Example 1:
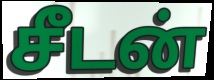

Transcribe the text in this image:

சீடன்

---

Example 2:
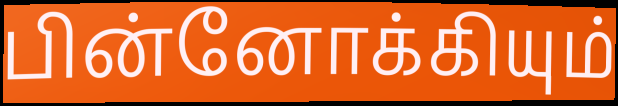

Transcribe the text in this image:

பின்னோக்கியும்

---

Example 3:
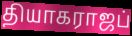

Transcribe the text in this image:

தியாகராஜப்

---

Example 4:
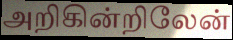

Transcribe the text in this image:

அறிகின்றிலேன்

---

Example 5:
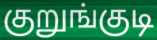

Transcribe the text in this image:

குறுங்குடி